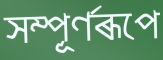
সম্পূৰ্ণৰূপে